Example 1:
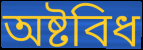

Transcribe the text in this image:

অষ্টবিধ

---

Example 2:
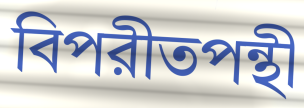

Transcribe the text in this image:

বিপরীতপন্থী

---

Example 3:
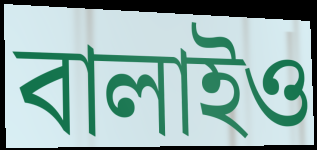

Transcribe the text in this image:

বালাইও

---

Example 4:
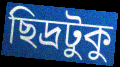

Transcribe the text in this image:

ছিদ্রটুকু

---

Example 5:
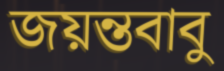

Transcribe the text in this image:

জয়ন্তবাবু